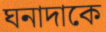
ঘনাদাকে